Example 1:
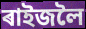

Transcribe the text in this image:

ৰাইজলৈ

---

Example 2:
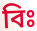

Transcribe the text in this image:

বিঃ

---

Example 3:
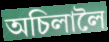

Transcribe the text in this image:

অচিলালৈ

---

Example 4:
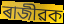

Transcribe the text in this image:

ৰাজীৱক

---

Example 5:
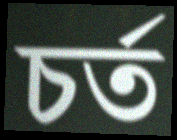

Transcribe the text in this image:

চৰ্ত